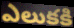
ఎలుకకి